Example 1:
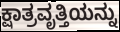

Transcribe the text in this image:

ಕ್ಷಾತ್ರವೃತ್ತಿಯನ್ನು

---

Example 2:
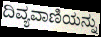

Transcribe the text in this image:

ದಿವ್ಯವಾಣಿಯನ್ನು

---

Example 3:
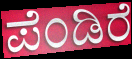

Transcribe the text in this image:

ಪೆಂಡಿರೆ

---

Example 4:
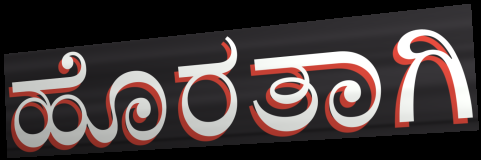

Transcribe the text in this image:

ಹೊರತಾಗಿ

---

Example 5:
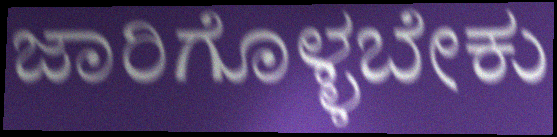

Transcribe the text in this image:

ಜಾರಿಗೊಳ್ಳಬೇಕು